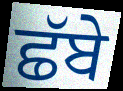
ਛੱਬੇ